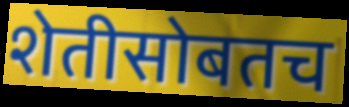
शेतीसोबतच